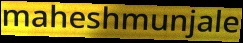
maheshmunjale